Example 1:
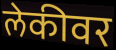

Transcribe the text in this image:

लेकीवर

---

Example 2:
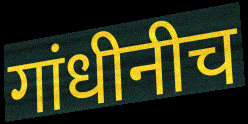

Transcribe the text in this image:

गांधीनीच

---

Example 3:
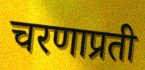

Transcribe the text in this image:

चरणाप्रती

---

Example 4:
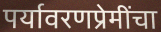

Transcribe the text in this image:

पर्यावरणप्रेमींचा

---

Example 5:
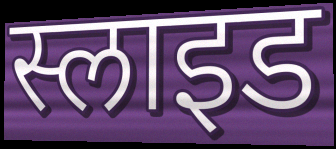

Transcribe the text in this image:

स्लाइड